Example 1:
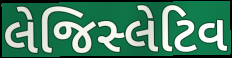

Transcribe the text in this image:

લેજિસ્લેટિવ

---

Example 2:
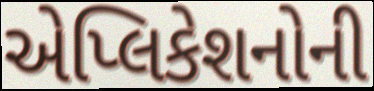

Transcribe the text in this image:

એપ્લિકેશનોની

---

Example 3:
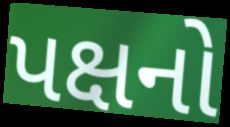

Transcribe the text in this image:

પક્ષનો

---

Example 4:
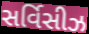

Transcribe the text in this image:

સર્વિસીઝ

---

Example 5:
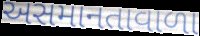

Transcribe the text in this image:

અસમાનતાવાળા